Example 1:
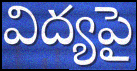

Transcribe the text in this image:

విద్యపై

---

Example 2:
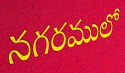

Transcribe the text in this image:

నగరములో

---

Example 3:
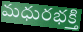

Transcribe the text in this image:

మధురభక్తి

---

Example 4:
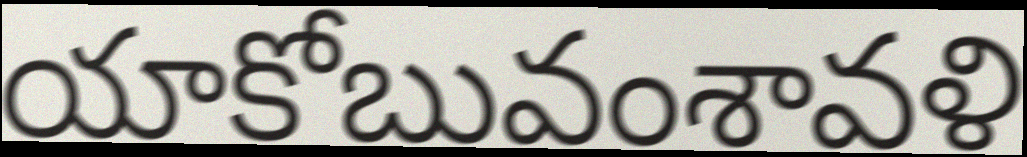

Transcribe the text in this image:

యాకోబువంశావళి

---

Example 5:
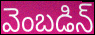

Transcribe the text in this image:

వెంబడిన్